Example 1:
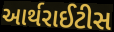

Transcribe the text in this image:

આર્થરાઈટીસ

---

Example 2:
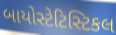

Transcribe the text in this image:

બાયોસ્ટેટિસ્ટિકલ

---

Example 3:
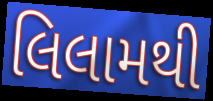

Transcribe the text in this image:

લિલામથી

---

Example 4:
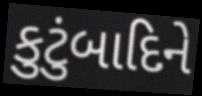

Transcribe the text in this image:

કુટુંબાદિને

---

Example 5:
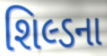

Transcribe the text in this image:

શિલ્ડના